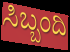
ಸಿಬ್ಬಂದಿ